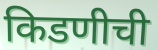
किडणीची